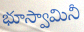
భూస్వామినీ